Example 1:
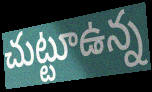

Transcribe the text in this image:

చుట్టూఉన్న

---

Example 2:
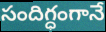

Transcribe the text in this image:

సందిగ్ధంగానే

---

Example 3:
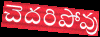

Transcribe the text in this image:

చెదరిపోవు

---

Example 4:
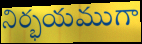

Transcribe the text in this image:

నిర్భయముగా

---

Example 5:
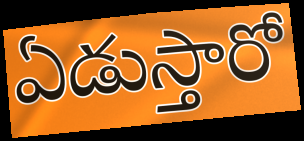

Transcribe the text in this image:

ఏడుస్తారో